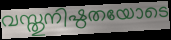
വസ്തുനിഷ്ഠതയോടെ